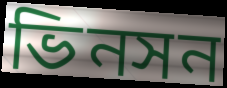
ভিনসন